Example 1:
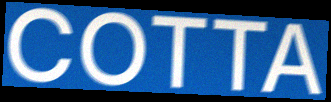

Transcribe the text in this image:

COTTA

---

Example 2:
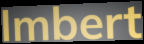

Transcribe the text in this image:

Imbert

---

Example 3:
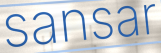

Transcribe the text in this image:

sansar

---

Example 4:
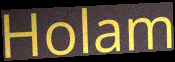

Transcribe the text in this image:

Holam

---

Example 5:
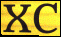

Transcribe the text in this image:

xc